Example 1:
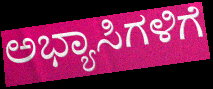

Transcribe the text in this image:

ಅಭ್ಯಾಸಿಗಳಿಗೆ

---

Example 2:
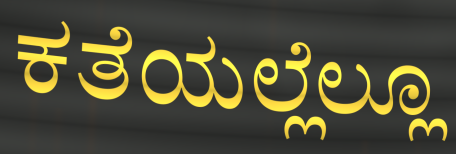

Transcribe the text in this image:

ಕತೆಯಲ್ಲೆಲ್ಲೂ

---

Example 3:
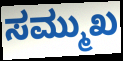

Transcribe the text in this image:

ಸಮ್ಮುಖ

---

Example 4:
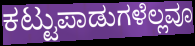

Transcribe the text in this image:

ಕಟ್ಟುಪಾಡುಗಳೆಲ್ಲವೂ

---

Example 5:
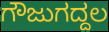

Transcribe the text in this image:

ಗೌಜುಗದ್ದಲ